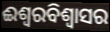
ଈଶ୍ୱରବିଶ୍ୱାସର